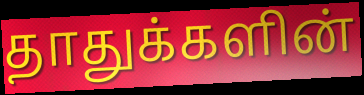
தாதுக்களின்